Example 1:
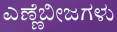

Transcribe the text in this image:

ಎಣ್ಣೆಬೀಜಗಳು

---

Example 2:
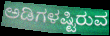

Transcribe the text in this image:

ಅಡಿಗಳಷ್ಟಿರುವ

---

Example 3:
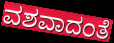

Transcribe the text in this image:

ವಶವಾದಂತೆ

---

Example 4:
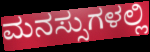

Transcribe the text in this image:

ಮನಸ್ಸುಗಳಲ್ಲಿ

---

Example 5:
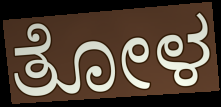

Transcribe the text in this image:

ತೋಳ